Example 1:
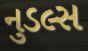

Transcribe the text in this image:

નુડલ્સ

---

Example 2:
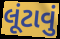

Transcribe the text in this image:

લૂંટાવું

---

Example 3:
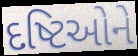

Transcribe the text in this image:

દષ્ટિઓને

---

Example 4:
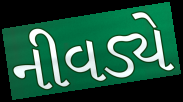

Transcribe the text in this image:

નીવડ્યે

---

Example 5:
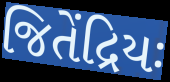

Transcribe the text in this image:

જિતેંદ્રિયઃ